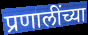
प्रणालींच्या